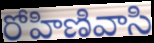
రోహిణివాసి